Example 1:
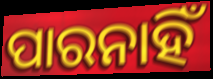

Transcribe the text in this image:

ପାରନାହିଁ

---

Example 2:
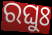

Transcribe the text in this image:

ରଘୁଃ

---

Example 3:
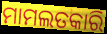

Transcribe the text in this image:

ମାମଲତକାରି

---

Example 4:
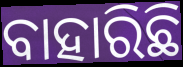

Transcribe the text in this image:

ବାହାରିଛି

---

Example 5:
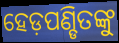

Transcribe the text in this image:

ହେଡ଼ପଣ୍ଡିତଙ୍କୁ